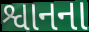
શ્વાનના